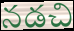
నడచి